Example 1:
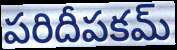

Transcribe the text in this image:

పరిదీపకమ్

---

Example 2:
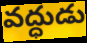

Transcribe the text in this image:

వద్ధుడు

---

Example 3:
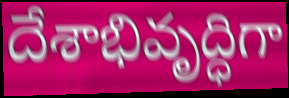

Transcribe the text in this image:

దేశాభివృద్ధిగా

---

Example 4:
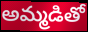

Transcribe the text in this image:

అమ్మడితో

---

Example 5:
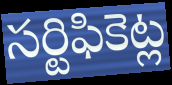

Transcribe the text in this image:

సర్టిఫికెట్ల